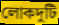
লোকদুটি